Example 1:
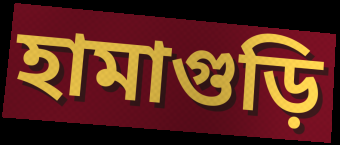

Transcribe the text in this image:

হামাগুড়ি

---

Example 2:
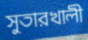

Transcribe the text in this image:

সুতারখালী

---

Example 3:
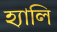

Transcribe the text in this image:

হ্যালি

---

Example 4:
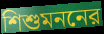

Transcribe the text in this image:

শিশুমননের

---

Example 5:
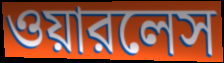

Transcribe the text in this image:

ওয়ারলেস